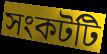
সংকটটি